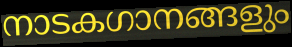
നാടകഗാനങ്ങളും